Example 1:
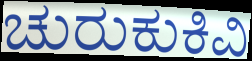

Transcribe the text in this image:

ಚುರುಕುಕಿವಿ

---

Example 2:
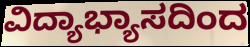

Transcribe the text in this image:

ವಿದ್ಯಾಭ್ಯಾಸದಿಂದ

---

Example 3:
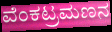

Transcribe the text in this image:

ವೆಂಕಟ್ರಮಣನ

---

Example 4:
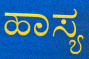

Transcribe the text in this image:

ಹಾಸ್ಯ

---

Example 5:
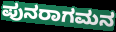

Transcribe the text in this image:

ಪುನರಾಗಮನ